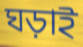
ঘড়াই